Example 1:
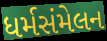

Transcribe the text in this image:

ધર્મસંમેલન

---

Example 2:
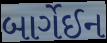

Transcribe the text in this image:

બાર્ગેઈન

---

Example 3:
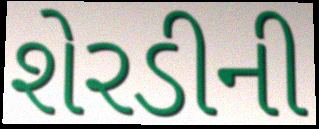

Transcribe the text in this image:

શેરડીની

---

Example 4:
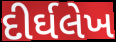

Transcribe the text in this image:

દીર્ઘલેખ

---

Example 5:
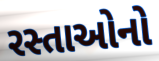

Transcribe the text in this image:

રસ્તાઓનો